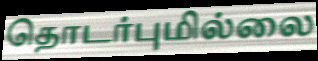
தொடர்புமில்லை